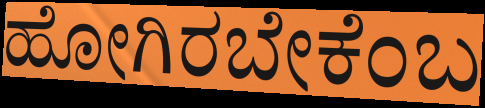
ಹೋಗಿರಬೇಕೆಂಬ